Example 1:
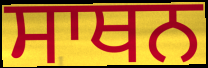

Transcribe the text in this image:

ਸਾਥਨ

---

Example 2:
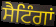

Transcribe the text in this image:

ਸੈਟਿੰਗਾਂ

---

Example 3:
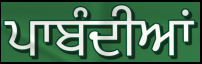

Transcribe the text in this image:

ਪਾਬੰਦੀਆਂ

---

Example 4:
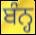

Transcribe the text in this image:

ਬੰਨ੍ਹ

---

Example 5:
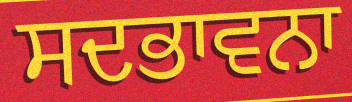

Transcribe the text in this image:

ਸਦਭਾਵਨਾ